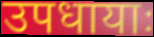
उपधायाः